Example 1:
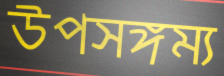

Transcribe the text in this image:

উপসঙ্গম্য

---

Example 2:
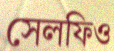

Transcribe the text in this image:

সেলফিও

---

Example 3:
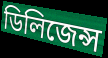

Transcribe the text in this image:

ডিলিজেন্স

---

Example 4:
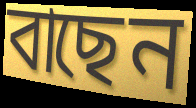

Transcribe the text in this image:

বাছেন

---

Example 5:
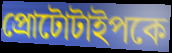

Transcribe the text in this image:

প্রোটোটাইপকে